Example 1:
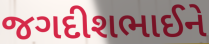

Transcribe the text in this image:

જગદીશભાઈને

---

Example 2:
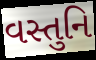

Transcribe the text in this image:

વસ્તુનિ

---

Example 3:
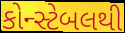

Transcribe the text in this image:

કોન્સ્ટેબલથી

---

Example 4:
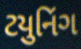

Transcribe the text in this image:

ટયુનિંગ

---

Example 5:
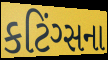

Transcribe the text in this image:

કટિંગ્સના